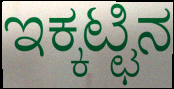
ಇಕ್ಕಟ್ಟಿನ